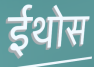
ईथोस